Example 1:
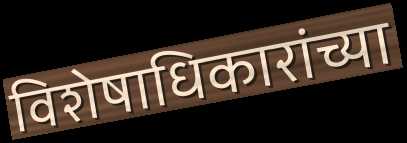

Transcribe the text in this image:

विशेषाधिकारांच्या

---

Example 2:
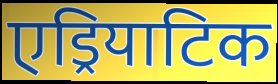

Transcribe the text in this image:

एड्रियाटिक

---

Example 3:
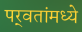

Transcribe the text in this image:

पर्वतांमध्ये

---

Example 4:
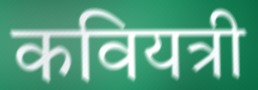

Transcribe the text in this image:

कवियत्री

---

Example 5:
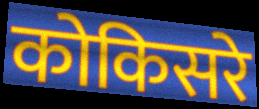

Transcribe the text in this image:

कोकिसरे